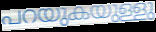
പറയുകയുള്ളു